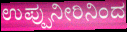
ಉಪ್ಪುನೀರಿನಿಂದ